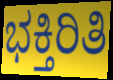
ಭಕ್ತಿರಿತಿ